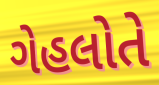
ગેહલોતે